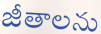
జీతాలను